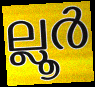
ല്ലൂർ